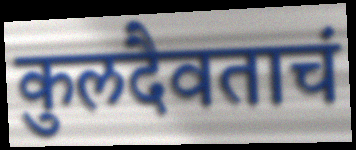
कुलदैवताचं